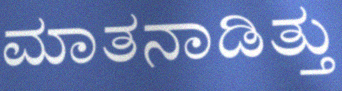
ಮಾತನಾಡಿತ್ತು